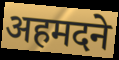
अहमदने